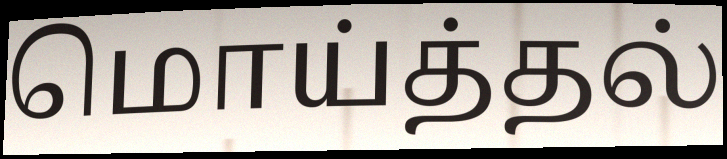
மொய்த்தல்